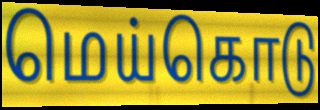
மெய்கொடு